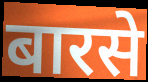
बारसे